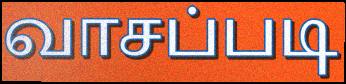
வாசப்படி